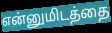
என்னுமிடத்தை